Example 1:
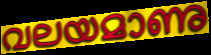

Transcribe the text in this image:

വലയമാണു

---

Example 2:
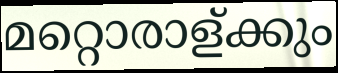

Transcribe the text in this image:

മറ്റൊരാള്ക്കും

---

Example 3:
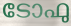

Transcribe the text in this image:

ടോഫു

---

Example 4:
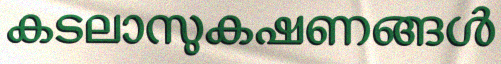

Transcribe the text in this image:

കടലാസുകഷണങ്ങൾ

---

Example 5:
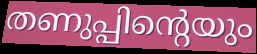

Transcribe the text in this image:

തണുപ്പിന്റെയും